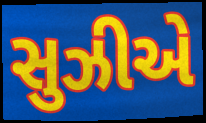
સુઝીએ